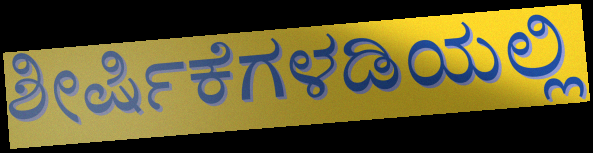
ಶೀರ್ಷಿಕೆಗಳಡಿಯಲ್ಲಿ